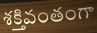
శక్తివంతంగా